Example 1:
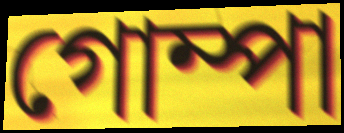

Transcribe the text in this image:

গোম্পা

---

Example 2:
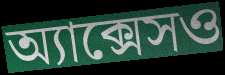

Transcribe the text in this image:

অ্যাক্সেসও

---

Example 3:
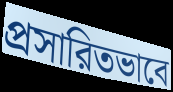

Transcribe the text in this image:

প্রসারিতভাবে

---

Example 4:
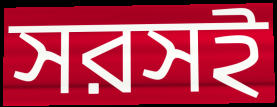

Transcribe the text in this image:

সরসই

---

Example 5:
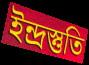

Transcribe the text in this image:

ইন্দ্রস্তুতি